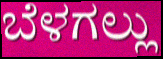
ಬೆಳಗಲ್ಲು